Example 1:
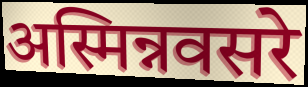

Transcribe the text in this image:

अस्मिन्नवसरे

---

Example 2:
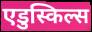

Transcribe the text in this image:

एडुस्किल्स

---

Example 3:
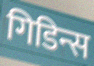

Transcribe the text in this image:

गिडिन्स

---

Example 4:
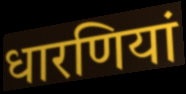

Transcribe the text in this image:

धारणियां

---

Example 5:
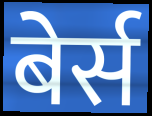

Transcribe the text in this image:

बेर्स